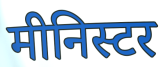
मीनिस्टर